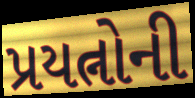
પ્રયત્નોની